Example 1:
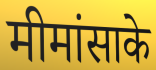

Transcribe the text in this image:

मीमांसाके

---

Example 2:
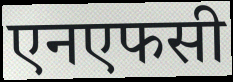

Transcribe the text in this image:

एनएफसी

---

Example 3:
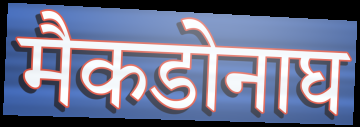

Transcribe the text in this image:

मैकडोनाघ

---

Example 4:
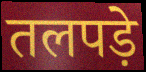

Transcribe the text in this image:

तलपड़े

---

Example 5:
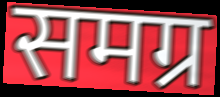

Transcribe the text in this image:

समग्र